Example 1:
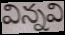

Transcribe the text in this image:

విన్నవి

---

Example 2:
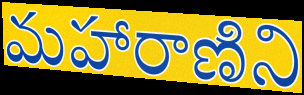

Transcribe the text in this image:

మహారాణిని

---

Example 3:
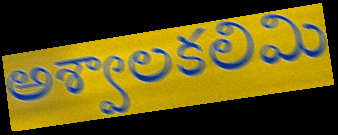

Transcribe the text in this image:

అశ్వాలకలిమి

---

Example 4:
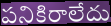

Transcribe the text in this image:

పనికిరాలేదు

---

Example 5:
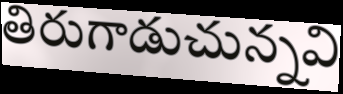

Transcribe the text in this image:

తిరుగాడుచున్నవి